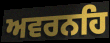
ਅਵਰਨਹਿ